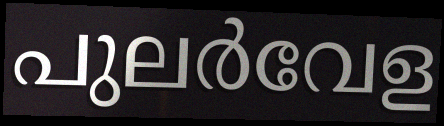
പുലർവേള